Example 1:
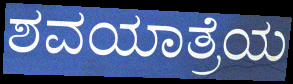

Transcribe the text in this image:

ಶವಯಾತ್ರೆಯ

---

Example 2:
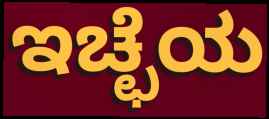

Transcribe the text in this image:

ಇಚ್ಛೆಯ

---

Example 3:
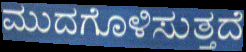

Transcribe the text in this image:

ಮುದಗೊಳಿಸುತ್ತದೆ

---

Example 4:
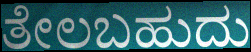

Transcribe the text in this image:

ತೇಲಬಹುದು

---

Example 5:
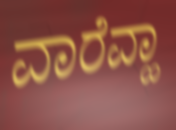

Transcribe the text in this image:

ವಾರೆವ್ಹಾ